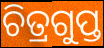
ଚିତ୍ରଗୁପ୍ତ